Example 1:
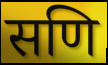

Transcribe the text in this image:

सणि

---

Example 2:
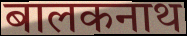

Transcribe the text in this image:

बालकनाथ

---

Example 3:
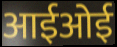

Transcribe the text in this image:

आईओई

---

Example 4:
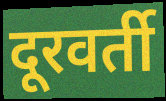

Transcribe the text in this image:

दूरवर्ती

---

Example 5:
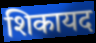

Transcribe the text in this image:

शिकायद